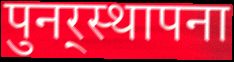
पुनर्स्थापना